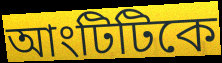
আংটিটিকে